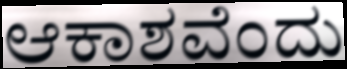
ಆಕಾಶವೆಂದು